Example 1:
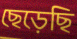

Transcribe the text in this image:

ছেড়েছি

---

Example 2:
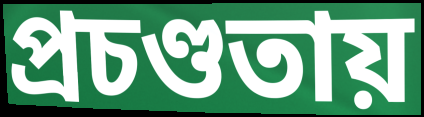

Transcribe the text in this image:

প্রচণ্ডতায়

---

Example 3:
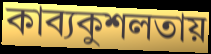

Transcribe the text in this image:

কাব্যকুশলতায়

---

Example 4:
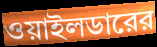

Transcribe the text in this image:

ওয়াইলডারের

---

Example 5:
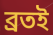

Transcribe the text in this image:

ব্রতই